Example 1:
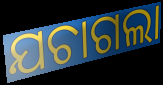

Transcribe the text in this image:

ଯଚାଗଲା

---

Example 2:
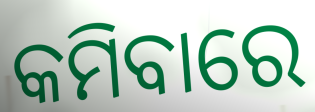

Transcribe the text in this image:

କମିବାରେ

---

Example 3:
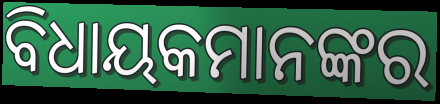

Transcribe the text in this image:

ବିଧାୟକମାନଙ୍କର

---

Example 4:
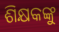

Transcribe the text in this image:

ଶିକ୍ଷକଙ୍କୁ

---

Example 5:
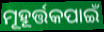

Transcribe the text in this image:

ମୂହୂର୍ତ୍ତକପାଇଁ